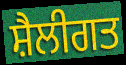
ਸ਼ੈਲੀਗਤ